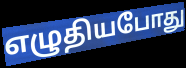
எழுதியபோது